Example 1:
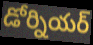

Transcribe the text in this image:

డోర్నియర్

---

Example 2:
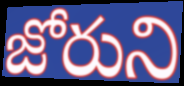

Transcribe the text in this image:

జోరుని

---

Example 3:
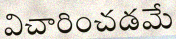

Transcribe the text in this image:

విచారించడమే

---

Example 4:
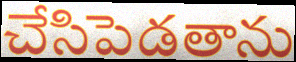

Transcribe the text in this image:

చేసిపెడతాను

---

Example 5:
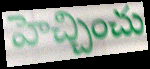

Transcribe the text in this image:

హెచ్చించు